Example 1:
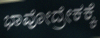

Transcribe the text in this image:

ಭಾವೋದ್ರೇಕಕ್ಕೆ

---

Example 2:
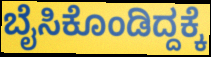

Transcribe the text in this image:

ಬೈಸಿಕೊಂಡಿದ್ದಕ್ಕೆ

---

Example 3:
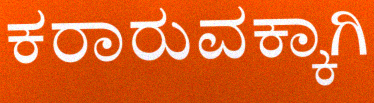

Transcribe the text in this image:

ಕರಾರುವಕ್ಕಾಗಿ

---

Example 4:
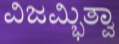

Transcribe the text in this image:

ವಿಜಮ್ಭಿತ್ವಾ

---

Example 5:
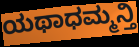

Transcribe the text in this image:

ಯಥಾಧಮ್ಮನ್ತಿ